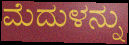
ಮೆದುಳನ್ನು